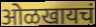
ओळखायचं